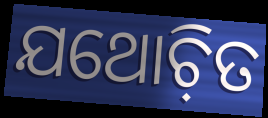
ଯଥୋଚ଼ିତ